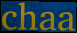
chaa